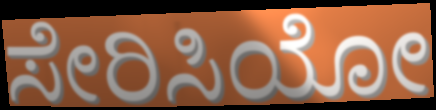
ಸೇರಿಸಿಯೋ